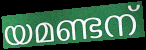
യമണ്ടന്